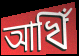
আখিঁ